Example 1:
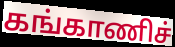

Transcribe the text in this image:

கங்காணிச்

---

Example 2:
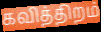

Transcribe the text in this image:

கவித்திறம்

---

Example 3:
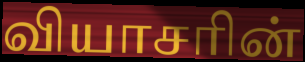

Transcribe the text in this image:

வியாசரின்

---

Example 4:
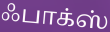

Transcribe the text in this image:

ஃபாக்ஸ்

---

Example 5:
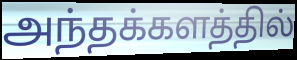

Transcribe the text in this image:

அந்தக்களத்தில்